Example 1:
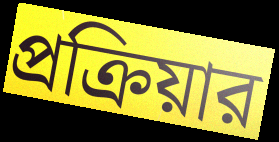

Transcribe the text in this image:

প্রক্রিয়ার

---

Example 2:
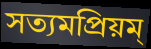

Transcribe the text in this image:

সত্যমপ্রিয়ম্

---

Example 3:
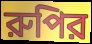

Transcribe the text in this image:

রুপির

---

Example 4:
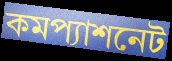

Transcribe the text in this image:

কমপ্যাশনেট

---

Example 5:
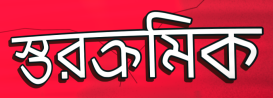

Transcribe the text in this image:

স্তরক্রমিক